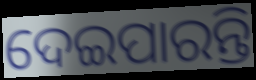
ଦେଇପାରନ୍ତି